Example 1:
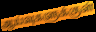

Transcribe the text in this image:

ஆய்வுகளுக்குள்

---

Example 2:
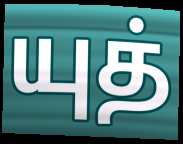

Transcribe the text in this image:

யுத்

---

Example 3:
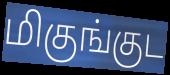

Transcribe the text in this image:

மிகுங்குட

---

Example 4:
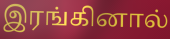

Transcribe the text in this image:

இரங்கினால்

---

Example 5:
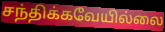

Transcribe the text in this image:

சந்திக்கவேயில்லை